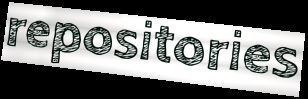
repositories